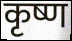
कृष्ण